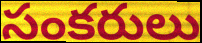
సంకరులు